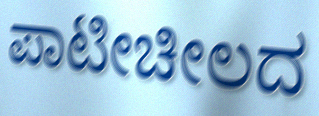
ಪಾಟೀಚೀಲದ